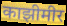
काझीमीर